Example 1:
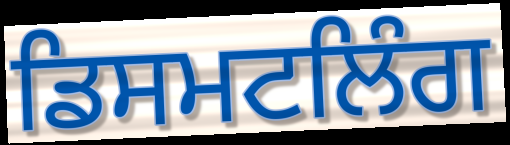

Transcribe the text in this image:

ਡਿਸਮਟਲਿੰਗ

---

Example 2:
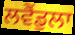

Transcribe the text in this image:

ਲਵੈਂਡੁਲਾ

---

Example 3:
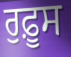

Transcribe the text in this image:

ਰੁਫ਼ੂਸ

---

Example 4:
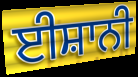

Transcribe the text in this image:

ਈਸ਼ਾਨੀ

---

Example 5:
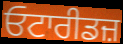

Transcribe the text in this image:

ਓਟਾਰੀਡਜ਼